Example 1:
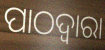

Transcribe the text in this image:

ପାଠଦ୍ଵାରା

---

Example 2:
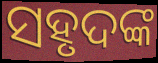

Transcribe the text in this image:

ସହୃଦଙ୍କ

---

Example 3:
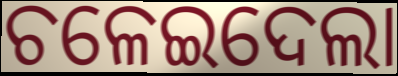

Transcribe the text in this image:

ଚଳେଇଦେଲା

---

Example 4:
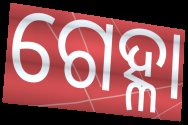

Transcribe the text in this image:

ଗେହ୍ଳା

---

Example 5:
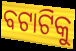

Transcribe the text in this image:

ବଟାଟିକୁ